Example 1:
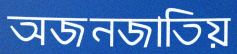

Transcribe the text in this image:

অজনজাতিয়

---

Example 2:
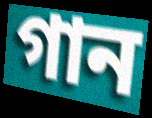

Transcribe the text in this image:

গান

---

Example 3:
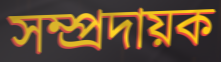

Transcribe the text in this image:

সম্প্ৰদায়ক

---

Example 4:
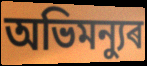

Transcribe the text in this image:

অভিমন্যুৰ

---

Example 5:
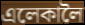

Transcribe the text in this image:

এলেকালৈ